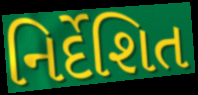
નિર્દેશિત